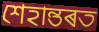
শেহান্তৰত